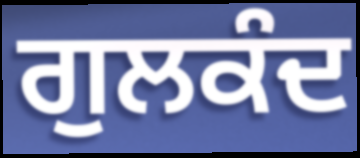
ਗੁਲਕੰਦ